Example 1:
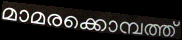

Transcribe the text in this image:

മാമരക്കൊമ്പത്ത്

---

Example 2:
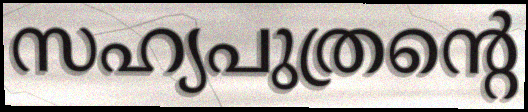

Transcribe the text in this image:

സഹ്യപുത്രന്റെ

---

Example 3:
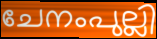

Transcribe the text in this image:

ചേനംപുല്ലി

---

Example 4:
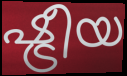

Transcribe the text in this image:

ഷ്ട്രീയ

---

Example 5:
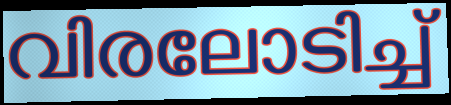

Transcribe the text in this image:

വിരലോടിച്ച്